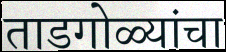
ताडगोळ्यांचा